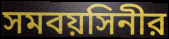
সমবয়সিনীর